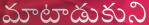
మాటాడుకుని